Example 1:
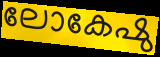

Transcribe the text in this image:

ലോകേഷു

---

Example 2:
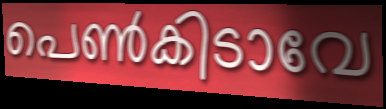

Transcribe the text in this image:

പെൺകിടാവേ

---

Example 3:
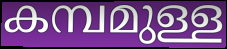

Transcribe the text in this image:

കമ്പമുള്ള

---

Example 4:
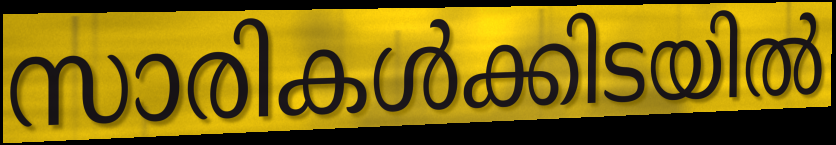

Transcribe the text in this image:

സാരികൾക്കിടയിൽ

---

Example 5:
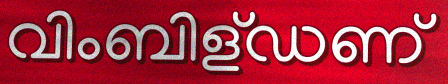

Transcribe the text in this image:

വിംബിള്ഡണ്